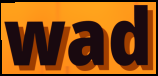
wad